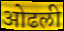
ओढली